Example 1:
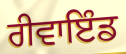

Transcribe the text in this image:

ਰੀਵਾਇੰਡ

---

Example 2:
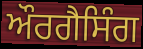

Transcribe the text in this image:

ਔਰਗੈਸਿੰਗ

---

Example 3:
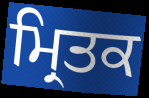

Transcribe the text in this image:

ਮ੍ਰਿਤਕ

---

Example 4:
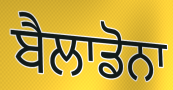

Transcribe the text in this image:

ਬੈਲਾਡੋਨਾ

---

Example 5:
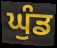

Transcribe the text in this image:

ਘੁੰਡ